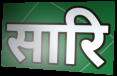
सारि